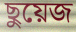
ছুয়েজ